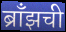
ब्राँझची